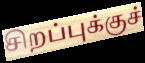
சிறப்புக்குச்